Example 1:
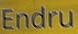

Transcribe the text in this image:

Endru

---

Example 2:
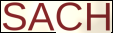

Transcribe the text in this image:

SACH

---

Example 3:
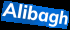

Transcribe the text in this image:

Alibagh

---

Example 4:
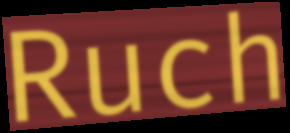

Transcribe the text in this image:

Ruch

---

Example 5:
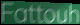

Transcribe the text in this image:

Fattouh